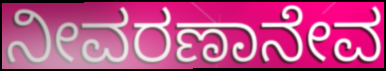
ನೀವರಣಾನೇವ